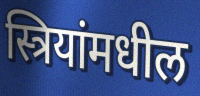
स्त्रियांमधील